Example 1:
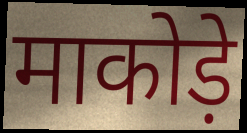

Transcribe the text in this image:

माकोड़े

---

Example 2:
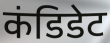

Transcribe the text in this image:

कंडिडेट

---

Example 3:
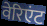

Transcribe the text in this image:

वेरिएंट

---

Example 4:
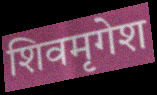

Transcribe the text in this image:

शिवमृगेश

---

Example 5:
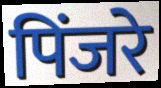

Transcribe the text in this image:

पिंजरे